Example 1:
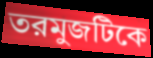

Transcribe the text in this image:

তরমুজটিকে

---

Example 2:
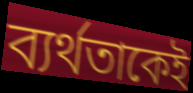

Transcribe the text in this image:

ব্যর্থতাকেই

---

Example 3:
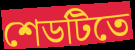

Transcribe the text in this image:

শেডটিতে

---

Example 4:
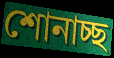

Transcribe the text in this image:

শোনাচ্ছ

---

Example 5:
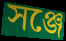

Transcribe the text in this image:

সঞ্জে